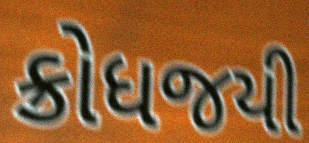
ક્રોધજયી